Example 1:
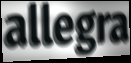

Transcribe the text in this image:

allegra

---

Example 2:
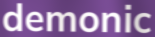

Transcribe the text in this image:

demonic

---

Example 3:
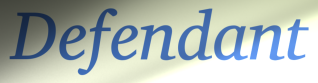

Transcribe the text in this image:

Defendant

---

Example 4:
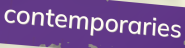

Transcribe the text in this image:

contemporaries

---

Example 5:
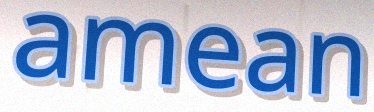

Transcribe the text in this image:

amean